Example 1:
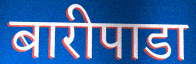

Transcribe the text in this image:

बारीपाडा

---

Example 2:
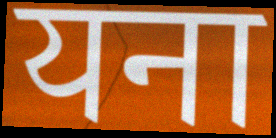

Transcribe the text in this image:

यना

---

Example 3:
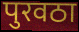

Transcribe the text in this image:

पुरवठा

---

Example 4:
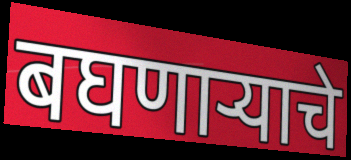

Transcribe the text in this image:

बघणाऱ्याचे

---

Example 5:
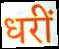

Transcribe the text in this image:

धरीं